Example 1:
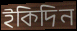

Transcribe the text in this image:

ইকিদিন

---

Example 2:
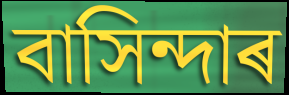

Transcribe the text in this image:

বাসিন্দাৰ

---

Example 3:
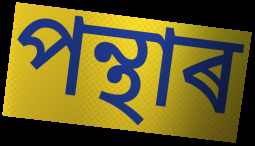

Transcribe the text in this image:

পন্থাৰ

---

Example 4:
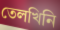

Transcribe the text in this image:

তেলখিনি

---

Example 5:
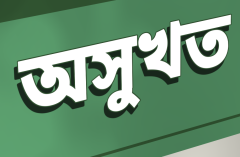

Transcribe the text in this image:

অসুখত